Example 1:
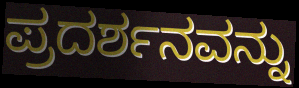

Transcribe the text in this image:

ಪ್ರದರ್ಶನವನ್ನು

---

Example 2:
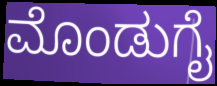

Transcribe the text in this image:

ಮೊಂಡುಗೈ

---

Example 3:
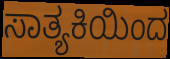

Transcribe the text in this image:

ಸಾತ್ಯಕಿಯಿಂದ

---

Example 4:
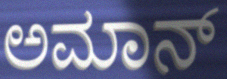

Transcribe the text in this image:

ಅಮಾನ್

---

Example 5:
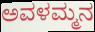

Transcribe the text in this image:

ಅವಳಮ್ಮನ